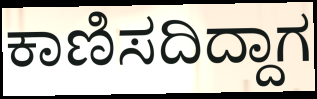
ಕಾಣಿಸದಿದ್ದಾಗ